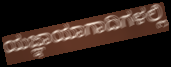
ಯಜ್ಞಾಯಾಗಾದಿಗಳಲ್ಲಿ